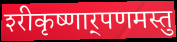
श्रीकृष्णार्पणमस्तु